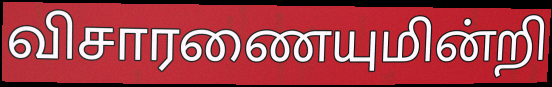
விசாரணையுமின்றி